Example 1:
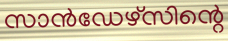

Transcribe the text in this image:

സാൻഡേഴ്സിന്റെ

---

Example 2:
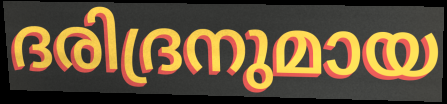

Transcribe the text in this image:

ദരിദ്രനുമായ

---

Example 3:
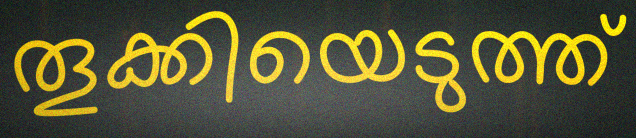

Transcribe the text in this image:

തൂക്കിയെടുത്ത്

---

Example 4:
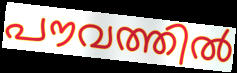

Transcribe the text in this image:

പൗവത്തിൽ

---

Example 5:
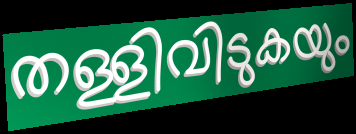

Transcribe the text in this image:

തള്ളിവിടുകയും